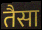
तैसा